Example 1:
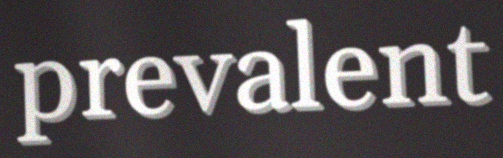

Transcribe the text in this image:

prevalent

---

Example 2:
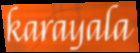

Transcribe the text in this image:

karayala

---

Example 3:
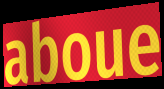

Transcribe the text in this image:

aboue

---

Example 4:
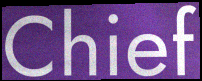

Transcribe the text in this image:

Chief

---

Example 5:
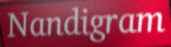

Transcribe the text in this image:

Nandigram